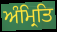
ਅੰਮ੍ਰਿਤਿ